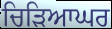
ਚਿੜਿਆਘਰ